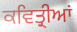
ਕਵਿਤ੍ਰੀਆਂ